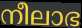
നീലാഭ